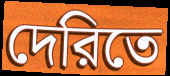
দেরিতে